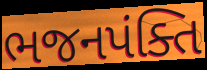
ભજનપંક્તિ